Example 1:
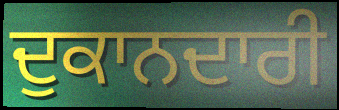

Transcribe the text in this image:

ਦੁਕਾਨਦਾਰੀ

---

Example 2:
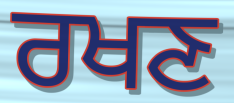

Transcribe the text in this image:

ਰਖਣ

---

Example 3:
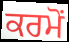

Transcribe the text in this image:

ਕਰਮੋਂ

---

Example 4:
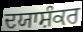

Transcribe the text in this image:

ਦਯਾਸ਼ੰਕਰ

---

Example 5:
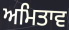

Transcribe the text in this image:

ਅਮਿਤਾਵ